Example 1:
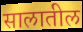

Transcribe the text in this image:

सालातील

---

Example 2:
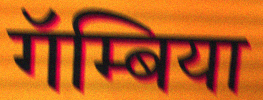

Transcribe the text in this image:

गॅम्बिया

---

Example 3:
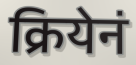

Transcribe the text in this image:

क्रियेनं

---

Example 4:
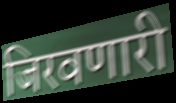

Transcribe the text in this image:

जिरवणारी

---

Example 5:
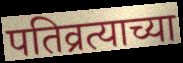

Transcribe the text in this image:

पतिव्रत्याच्या